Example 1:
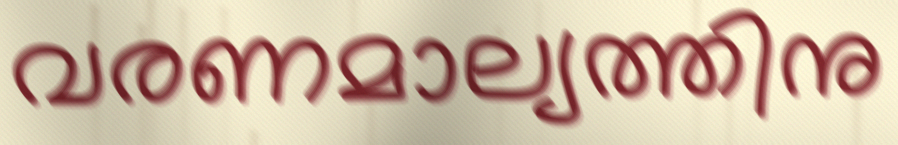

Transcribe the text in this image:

വരണമാല്യത്തിനു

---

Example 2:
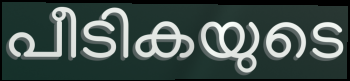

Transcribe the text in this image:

പീടികയുടെ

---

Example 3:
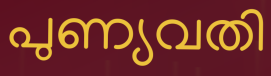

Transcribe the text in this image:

പുണ്യവതി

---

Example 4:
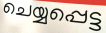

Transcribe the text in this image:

ചെയ്യപ്പെട്ട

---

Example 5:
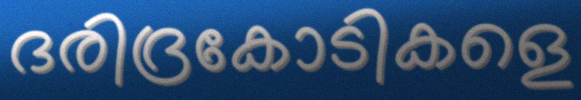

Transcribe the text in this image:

ദരിദ്രകോടികളെ